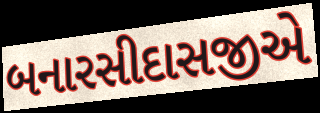
બનારસીદાસજીએ